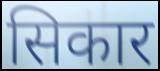
सिकार